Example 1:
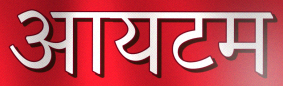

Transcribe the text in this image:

आयटम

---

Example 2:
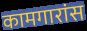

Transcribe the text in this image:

कामगारांस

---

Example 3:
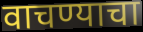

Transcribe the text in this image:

वाचण्याचा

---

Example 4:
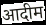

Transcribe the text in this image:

आदीम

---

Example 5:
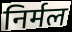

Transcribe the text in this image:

निर्मल